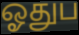
ஓதுப